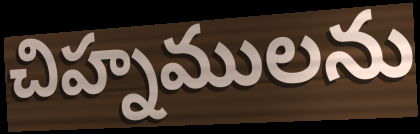
చిహ్నములను